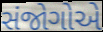
સંજોગોએ